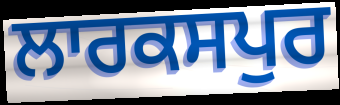
ਲਾਰਕਸਪੁਰ